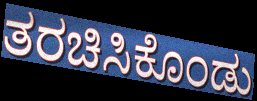
ತರಚಿಸಿಕೊಂಡು